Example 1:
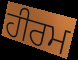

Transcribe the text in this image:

ਹੀਰਮ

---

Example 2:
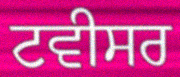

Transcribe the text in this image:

ਟਵੀਸਰ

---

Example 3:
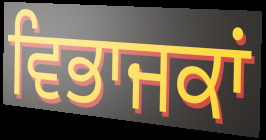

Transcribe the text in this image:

ਵਿਭਾਜਕਾਂ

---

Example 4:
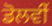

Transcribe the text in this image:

ਡੋਲਵੀਂ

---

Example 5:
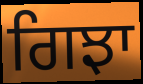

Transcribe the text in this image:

ਗਿਝਾ